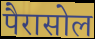
पैरासोल